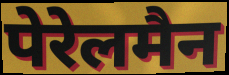
पेरेलमैन